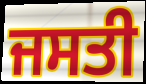
ਜਸਤੀ